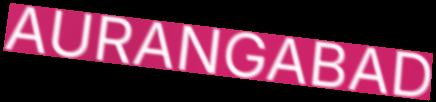
AURANGABAD